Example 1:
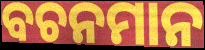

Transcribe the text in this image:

ବଚନମାନ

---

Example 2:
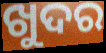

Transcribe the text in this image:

ଖୁଦର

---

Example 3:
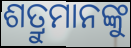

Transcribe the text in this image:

ଶତ୍ରୁମାନଙ୍କୁ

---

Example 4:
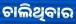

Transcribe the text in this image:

ଚାଲିଥିବାର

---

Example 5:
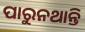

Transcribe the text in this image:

ପାରୁନଥାନ୍ତି